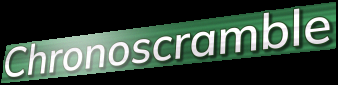
Chronoscramble